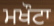
ਮਖੌਟਾ